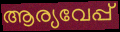
ആര്യവേപ്പ്